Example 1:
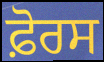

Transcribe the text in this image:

ਫ਼ੋਰਸ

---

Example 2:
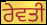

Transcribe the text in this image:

ਰੇਵਤੀ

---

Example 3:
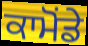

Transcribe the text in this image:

ਕਾਮੋਂਡੇ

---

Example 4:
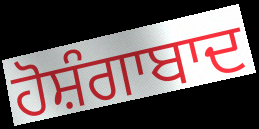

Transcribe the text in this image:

ਹੋਸ਼ੰਗਾਬਾਦ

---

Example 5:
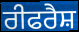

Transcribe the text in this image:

ਰੀਫਰੈਸ਼